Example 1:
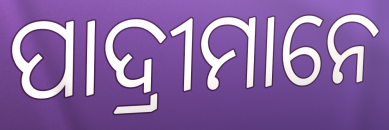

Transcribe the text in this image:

ପାଦ୍ରୀମାନେ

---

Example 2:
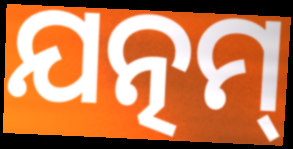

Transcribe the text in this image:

ଯତ୍ନମ୍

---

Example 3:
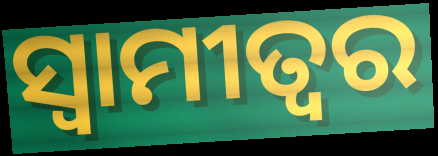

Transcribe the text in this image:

ସ୍ଵାମୀତ୍ୱର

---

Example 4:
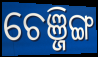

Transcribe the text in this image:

ଚେଞ୍ଜିଙ୍ଗ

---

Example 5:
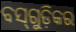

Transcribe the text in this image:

ବସ୍‌ଗୁଡ଼ିକର